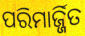
ପରିମାର୍ଜ୍ଜିତ